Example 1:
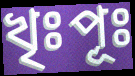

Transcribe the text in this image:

খৃঃপূঃ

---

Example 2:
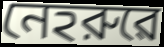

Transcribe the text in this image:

নেহৰুৱে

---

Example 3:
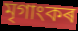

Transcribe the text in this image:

মৃগাংকৰ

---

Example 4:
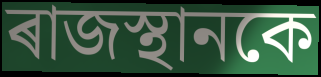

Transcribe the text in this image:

ৰাজস্থানকে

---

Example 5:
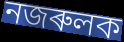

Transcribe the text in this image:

নজৰুলক